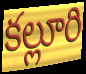
కల్లూరి